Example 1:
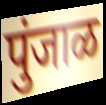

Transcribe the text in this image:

पुंजाळ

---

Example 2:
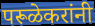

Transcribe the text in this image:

परूळेकरांनी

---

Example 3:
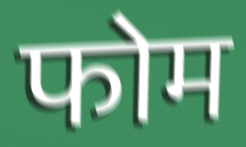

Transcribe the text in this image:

फोम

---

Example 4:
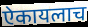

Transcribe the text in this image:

ऐकायलाच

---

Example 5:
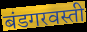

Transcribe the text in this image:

बंडगरवस्ती